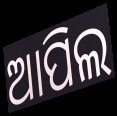
ଆପିଲ